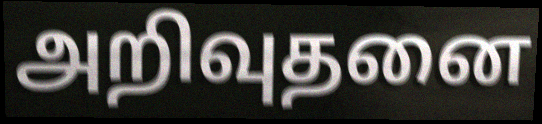
அறிவுதனை